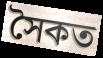
সৈকত